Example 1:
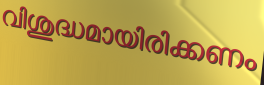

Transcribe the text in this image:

വിശുദ്ധമായിരിക്കണം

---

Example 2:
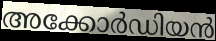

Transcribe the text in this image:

അക്കോർഡിയൻ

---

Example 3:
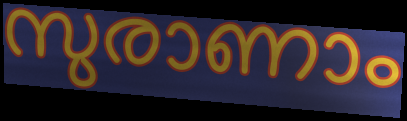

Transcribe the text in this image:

സുരാണാം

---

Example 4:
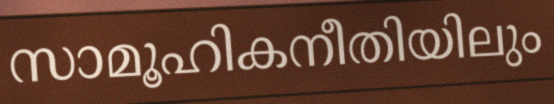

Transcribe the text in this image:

സാമൂഹികനീതിയിലും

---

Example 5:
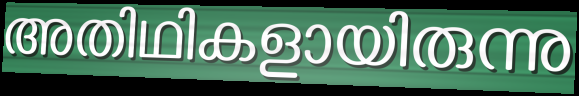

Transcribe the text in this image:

അതിഥികളായിരുന്നു